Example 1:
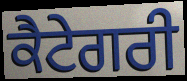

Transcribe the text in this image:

ਕੈਟੇਗਰੀ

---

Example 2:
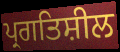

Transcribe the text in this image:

ਪ੍ਰਗਤਿਸ਼ੀਲ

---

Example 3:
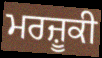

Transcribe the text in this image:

ਮਰਜ਼ੂਕੀ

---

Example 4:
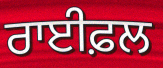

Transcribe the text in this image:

ਰਾਈਫ਼ਲ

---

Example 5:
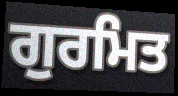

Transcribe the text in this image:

ਗੁਰਮਿਤ